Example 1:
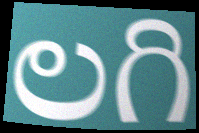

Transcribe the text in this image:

లగి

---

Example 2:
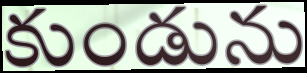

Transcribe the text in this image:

కుండును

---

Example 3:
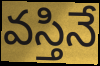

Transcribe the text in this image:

వస్తినే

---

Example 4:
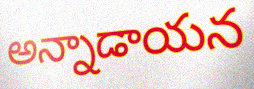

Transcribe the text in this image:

అన్నాడాయన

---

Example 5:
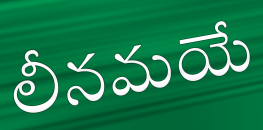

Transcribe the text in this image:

లీనమయే